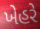
ખેહરે